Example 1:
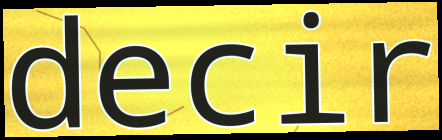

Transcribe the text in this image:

decir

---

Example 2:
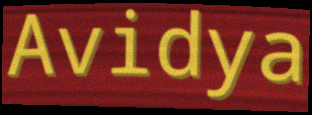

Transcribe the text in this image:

Avidya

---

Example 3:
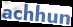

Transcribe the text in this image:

achhun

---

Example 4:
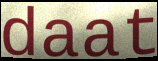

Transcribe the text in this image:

daat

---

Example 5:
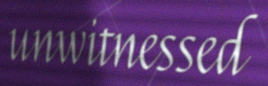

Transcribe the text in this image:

unwitnessed